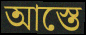
আস্তে